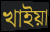
খাইয়া